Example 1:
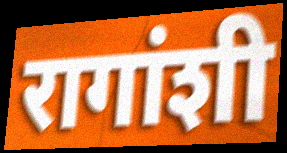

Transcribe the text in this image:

रागांशी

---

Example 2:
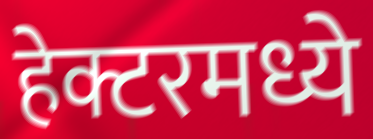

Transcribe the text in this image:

हेक्टरमध्ये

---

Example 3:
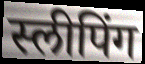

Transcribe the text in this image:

स्लीपिंग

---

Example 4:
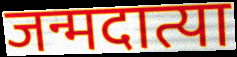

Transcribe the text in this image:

जन्मदात्या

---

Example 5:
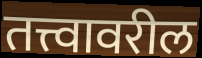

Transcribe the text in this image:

तत्त्वावरील